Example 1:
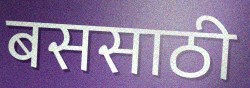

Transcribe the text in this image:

बससाठी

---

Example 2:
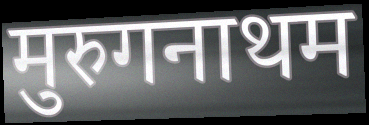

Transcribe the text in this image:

मुरुगनाथम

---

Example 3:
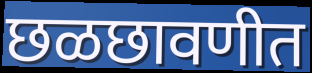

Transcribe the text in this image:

छळछावणीत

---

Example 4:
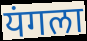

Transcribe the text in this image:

यंगला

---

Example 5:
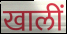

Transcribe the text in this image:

खालीं